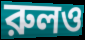
রুলও